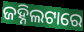
ଜହ୍ନିଲଟାରେ